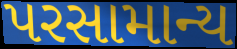
પરસામાન્ય